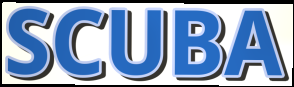
SCUBA